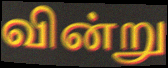
வின்று